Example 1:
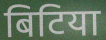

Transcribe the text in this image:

बिटिया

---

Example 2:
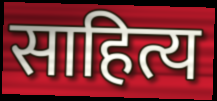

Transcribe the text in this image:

साहित्य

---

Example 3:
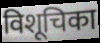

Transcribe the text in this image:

विशूचिका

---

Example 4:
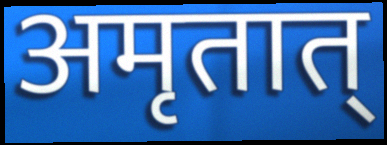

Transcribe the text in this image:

अमृतात्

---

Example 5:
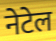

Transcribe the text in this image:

नेटेल